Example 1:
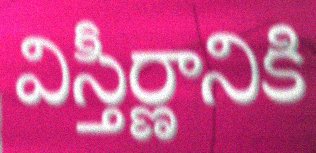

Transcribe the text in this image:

విస్తీర్ణానికి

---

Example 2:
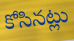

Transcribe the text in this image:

కోసినట్లు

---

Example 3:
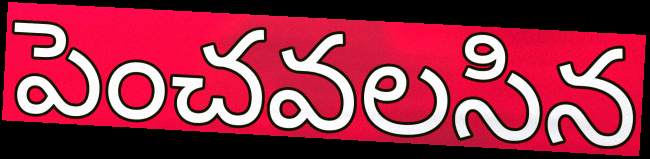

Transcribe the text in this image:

పెంచవలసిన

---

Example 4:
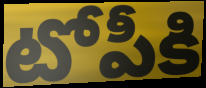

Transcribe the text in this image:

టోపీకి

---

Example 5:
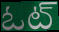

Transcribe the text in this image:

ఓట్